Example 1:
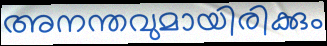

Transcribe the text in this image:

അനന്തവുമായിരിക്കും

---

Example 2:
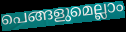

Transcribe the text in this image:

പെങ്ങളുമെല്ലാം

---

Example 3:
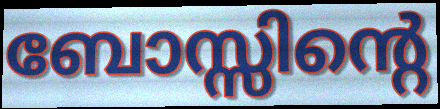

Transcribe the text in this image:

ബോസ്സിന്റെ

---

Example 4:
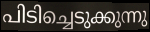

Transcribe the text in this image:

പിടിച്ചെടുക്കുന്നു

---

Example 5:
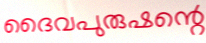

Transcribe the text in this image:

ദൈവപുരുഷന്റെ